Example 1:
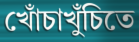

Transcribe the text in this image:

খোঁচাখুঁচিতে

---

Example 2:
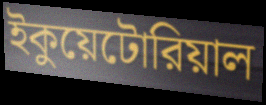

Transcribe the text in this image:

ইকুয়েটোরিয়াল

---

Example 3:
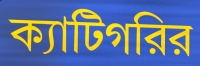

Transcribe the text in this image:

ক্যাটিগরির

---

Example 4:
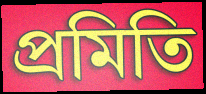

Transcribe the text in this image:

প্রমিতি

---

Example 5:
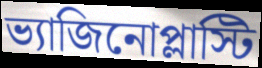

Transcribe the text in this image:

ভ্যাজিনোপ্লাস্টি